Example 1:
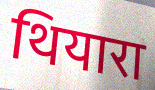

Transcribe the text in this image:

थियारा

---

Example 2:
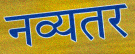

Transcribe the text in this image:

नव्यतर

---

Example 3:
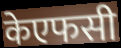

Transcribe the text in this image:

केएफसी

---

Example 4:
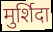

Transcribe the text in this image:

मुर्शिदा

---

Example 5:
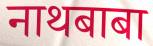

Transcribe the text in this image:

नाथबाबा